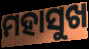
ମହାସୁଖ